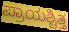
ಪ್ರಾಯಶ್ಚಿತ್ತ